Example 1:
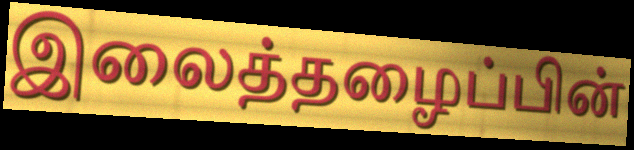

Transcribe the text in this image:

இலைத்தழைப்பின்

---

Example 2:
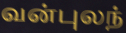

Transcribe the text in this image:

வன்புலந்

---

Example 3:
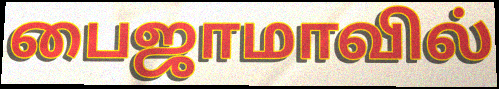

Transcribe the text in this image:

பைஜாமாவில்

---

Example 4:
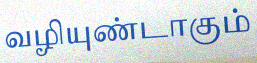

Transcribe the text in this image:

வழியுண்டாகும்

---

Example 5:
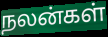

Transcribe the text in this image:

நலன்கள்